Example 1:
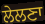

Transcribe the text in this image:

ਲੇਲਣਾ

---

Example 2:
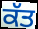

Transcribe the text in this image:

ਕੱਤ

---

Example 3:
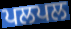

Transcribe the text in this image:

ਪਲਪਲ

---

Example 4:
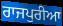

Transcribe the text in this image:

ਰਾਜਪੁਰੀਆ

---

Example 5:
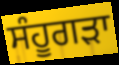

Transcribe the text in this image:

ਸੰਹੂਗੜਾ